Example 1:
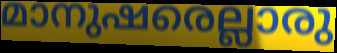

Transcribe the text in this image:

മാനുഷരെല്ലാരു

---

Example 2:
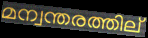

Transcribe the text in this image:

മന്വന്തരത്തില്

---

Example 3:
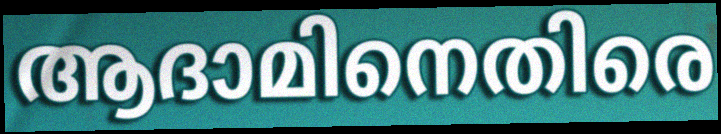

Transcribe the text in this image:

ആദാമിനെതിരെ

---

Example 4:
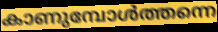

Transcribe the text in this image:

കാണുമ്പോൾത്തന്നെ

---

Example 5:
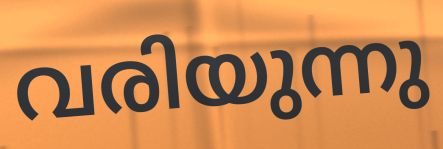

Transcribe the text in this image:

വരിയുന്നു